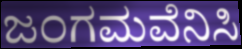
ಜಂಗಮವೆನಿಸಿ